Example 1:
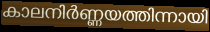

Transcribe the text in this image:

കാലനിർണ്ണയത്തിന്നായി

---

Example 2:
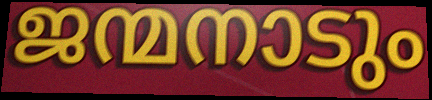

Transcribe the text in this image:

ജന്മനാടും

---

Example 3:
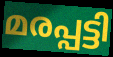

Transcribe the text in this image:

മരപ്പട്ടി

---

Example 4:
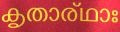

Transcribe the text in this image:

കൃതാര്ഥാഃ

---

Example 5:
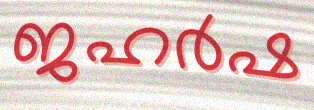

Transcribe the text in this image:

ജഹർഷ